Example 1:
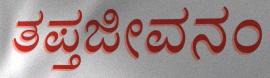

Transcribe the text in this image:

ತಪ್ತಜೀವನಂ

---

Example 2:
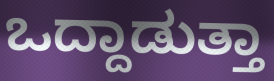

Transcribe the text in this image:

ಒದ್ದಾಡುತ್ತಾ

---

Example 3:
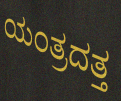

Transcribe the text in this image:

ಯಂತ್ರದತ್ತ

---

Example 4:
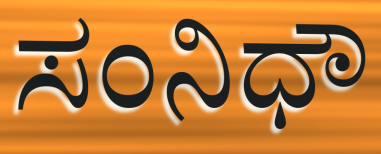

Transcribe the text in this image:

ಸಂನಿಧೌ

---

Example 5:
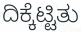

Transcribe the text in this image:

ದಿಕ್ಕೆಟ್ಟಿತು